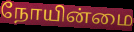
நோயின்மை